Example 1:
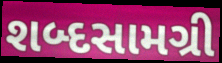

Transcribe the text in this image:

શબ્દસામગ્રી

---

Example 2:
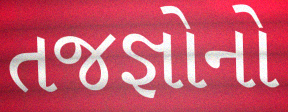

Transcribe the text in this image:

તજજ્ઞોનો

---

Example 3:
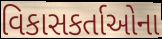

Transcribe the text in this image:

વિકાસકર્તાઓના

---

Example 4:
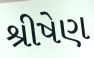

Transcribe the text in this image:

શ્રીષેણ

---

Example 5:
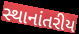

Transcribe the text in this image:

સ્થાનાંતરીય